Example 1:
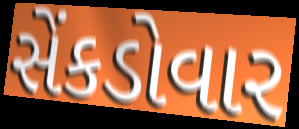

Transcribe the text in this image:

સેંકડોવાર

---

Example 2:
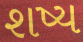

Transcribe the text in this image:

શષ્ય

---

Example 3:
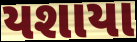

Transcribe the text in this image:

યશાયા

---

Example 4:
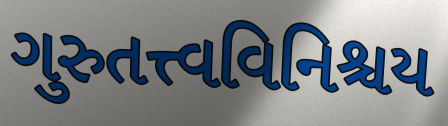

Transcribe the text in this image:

ગુરુતત્ત્વવિનિશ્ચય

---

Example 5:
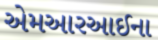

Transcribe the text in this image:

એમઆરઆઈના